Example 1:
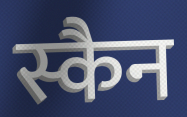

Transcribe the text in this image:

स्‍कैन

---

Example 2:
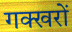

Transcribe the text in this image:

गक्खरों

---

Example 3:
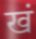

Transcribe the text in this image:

खं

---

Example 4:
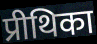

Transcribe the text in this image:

प्रीथिका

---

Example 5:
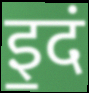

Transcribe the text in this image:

इ॒दं